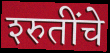
श्रुतींचे